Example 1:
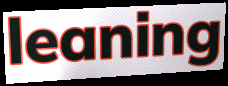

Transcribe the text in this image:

leaning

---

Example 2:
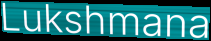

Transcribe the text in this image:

Lukshmana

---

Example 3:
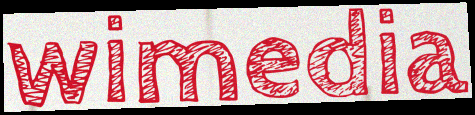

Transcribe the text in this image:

wimedia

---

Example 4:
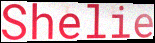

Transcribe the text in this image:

Shelie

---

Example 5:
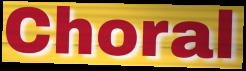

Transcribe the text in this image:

Choral